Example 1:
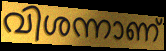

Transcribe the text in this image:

വിശന്നാണ്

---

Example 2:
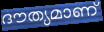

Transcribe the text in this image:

ദൗത്യമാണ്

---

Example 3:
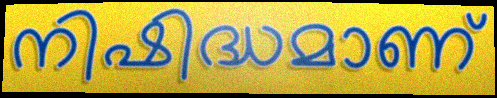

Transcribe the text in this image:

നിഷിദ്ധമാണ്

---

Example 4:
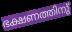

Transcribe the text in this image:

ഭക്ഷണത്തിനു്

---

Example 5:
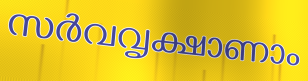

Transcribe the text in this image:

സർവവൃക്ഷാണാം